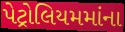
પેટ્રોલિયમમાંના